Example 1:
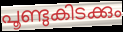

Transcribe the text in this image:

പൂണ്ടുകിടക്കും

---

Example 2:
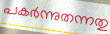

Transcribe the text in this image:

പകർന്നുതന്നതു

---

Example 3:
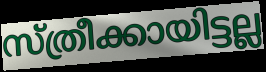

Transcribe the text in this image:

സ്ത്രീക്കായിട്ടല്ല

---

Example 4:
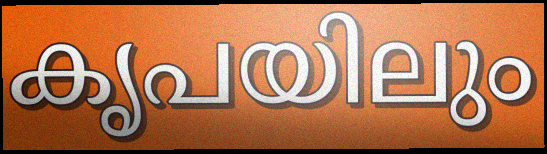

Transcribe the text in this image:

കൃപയിലും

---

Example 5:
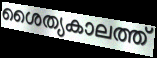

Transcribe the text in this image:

ശൈത്യകാലത്ത്